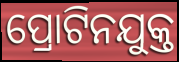
ପ୍ରୋଟିନଯୁକ୍ତ